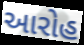
આરોહ